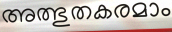
അത്ഭുതകരമാം